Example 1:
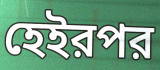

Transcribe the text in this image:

হেইরপর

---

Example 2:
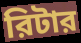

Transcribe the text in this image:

রিটার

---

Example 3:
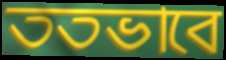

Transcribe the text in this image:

ততভাবে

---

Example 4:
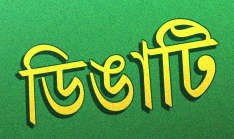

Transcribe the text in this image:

ডিঙাটি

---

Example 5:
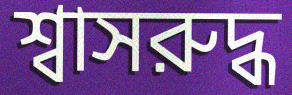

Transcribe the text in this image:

শ্বাসরুদ্ধ